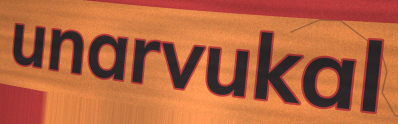
unarvukal